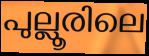
പുല്ലൂരിലെ